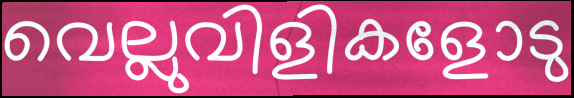
വെല്ലുവിളികളോടു